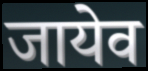
जायेव